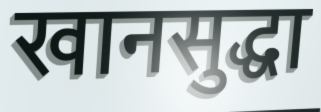
खानसुद्धा